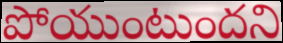
పోయుంటుందని